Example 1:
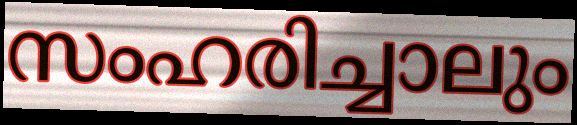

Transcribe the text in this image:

സംഹരിച്ചാലും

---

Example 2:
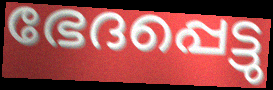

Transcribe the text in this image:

ഭേദപ്പെട്ടു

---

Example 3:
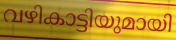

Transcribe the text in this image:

വഴികാട്ടിയുമായി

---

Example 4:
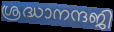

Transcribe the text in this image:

ശ്രദ്ധാനന്ദജി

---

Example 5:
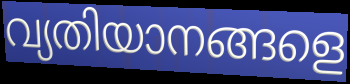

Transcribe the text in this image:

വ്യതിയാനങ്ങളെ